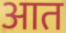
आत